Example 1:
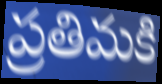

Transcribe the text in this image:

ప్రతిమకి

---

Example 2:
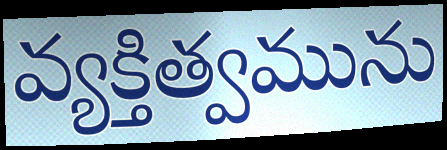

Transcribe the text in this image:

వ్యక్తిత్వమును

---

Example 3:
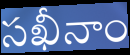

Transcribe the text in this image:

సఖీనాం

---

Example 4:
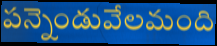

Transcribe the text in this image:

పన్నెండువేలమంది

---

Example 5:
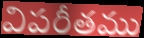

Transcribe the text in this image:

విపరీతము